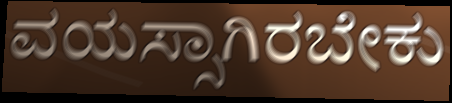
ವಯಸ್ಸಾಗಿರಬೇಕು